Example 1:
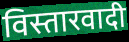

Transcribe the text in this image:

विस्तारवादी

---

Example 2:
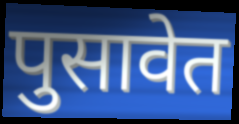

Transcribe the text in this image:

पुसावेत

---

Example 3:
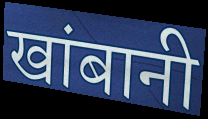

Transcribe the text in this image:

खांबानी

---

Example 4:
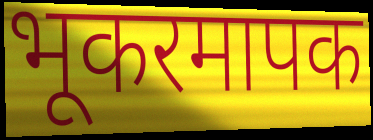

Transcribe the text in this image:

भूकरमापक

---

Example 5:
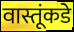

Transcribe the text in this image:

वास्तूंकडे